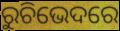
ରୁଚିଭେଦରେ